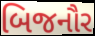
બિજનૌર